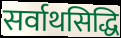
सर्वाथसिद्धि